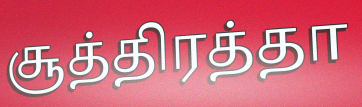
சூத்திரத்தா